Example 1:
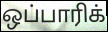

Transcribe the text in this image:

ஒப்பாரிக்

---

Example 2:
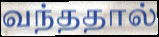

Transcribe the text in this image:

வந்ததால்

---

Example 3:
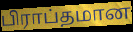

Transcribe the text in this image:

பிராப்தமான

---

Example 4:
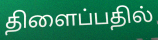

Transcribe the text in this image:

திளைப்பதில்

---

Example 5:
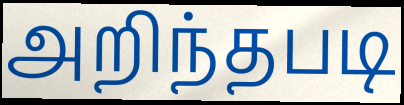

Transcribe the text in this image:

அறிந்தபடி